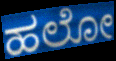
ಹಲೋ